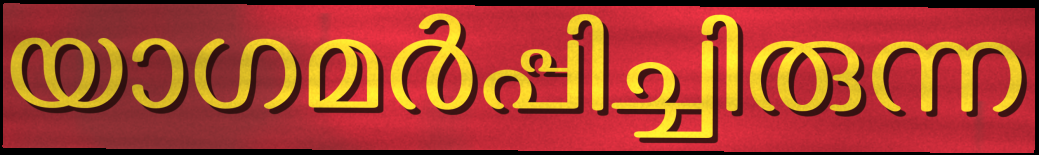
യാഗമർപ്പിച്ചിരുന്ന